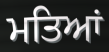
ਮਤਿਆਂ